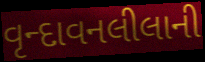
વૃન્દાવનલીલાની